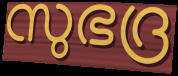
സുഭദ്ര